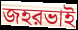
জহরভাই